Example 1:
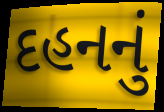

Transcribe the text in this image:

દહનનું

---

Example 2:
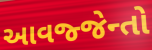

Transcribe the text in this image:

આવજ્જેન્તો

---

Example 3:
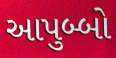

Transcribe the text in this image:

આપુબ્બો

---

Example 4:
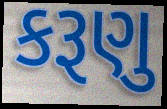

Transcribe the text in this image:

કરૂણુ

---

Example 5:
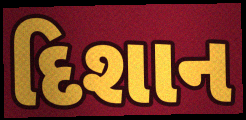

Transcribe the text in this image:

દિશાન